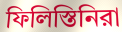
ফিলিস্তিনিরা